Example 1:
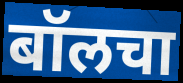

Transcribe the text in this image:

बॉलचा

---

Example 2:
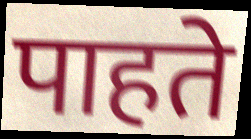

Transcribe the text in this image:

पाहते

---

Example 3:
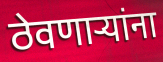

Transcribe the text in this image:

ठेवणार्‍यांना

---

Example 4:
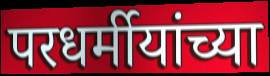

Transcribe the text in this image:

परधर्मीयांच्या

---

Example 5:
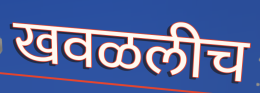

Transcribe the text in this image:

खवळलीच